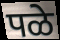
पळे